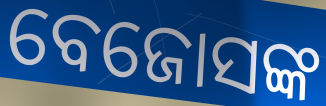
ବେଜୋସଙ୍କ